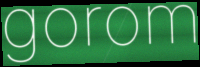
gorom